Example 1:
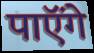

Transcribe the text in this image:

पाऍंगे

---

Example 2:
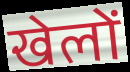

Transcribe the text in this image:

खेलों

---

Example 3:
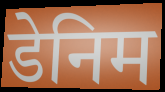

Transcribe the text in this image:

डेनिम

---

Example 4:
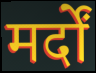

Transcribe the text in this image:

मर्दों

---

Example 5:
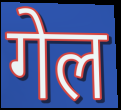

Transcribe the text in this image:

गेल